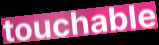
touchable